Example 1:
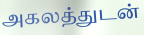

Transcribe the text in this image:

அகலத்துடன்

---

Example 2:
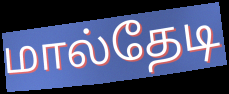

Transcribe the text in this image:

மால்தேடி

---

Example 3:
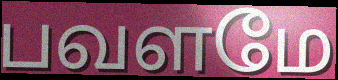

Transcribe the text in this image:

பவளமே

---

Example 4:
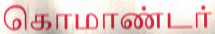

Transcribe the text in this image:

கொமாண்டர்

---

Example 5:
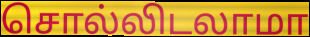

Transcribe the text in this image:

சொல்லிடலாமா